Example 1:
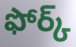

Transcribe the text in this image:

ఫోర్క్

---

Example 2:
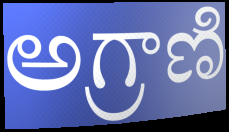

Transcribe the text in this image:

అగ్రాణి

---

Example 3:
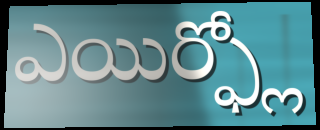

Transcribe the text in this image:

ఎయిర్ఫ్లో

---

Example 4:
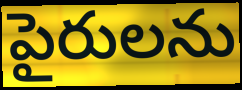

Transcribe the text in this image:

పైరులను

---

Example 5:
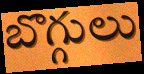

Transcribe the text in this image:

బొగ్గులు